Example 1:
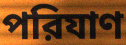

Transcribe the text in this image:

পরিযাণ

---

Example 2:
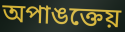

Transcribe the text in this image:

অপাঙক্তেয়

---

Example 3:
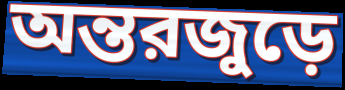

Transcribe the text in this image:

অন্তরজুড়ে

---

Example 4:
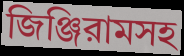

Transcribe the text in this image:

জিঞ্জিরামসহ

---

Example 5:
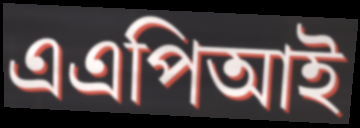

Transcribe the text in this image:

এএপিআই